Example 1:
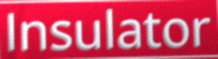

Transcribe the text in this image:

Insulator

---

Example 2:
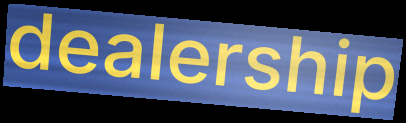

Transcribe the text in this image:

dealership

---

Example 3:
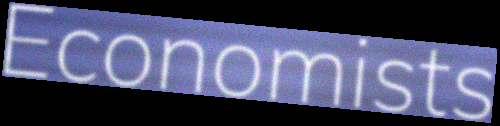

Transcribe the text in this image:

Economists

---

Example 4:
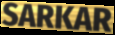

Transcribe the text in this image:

SARKAR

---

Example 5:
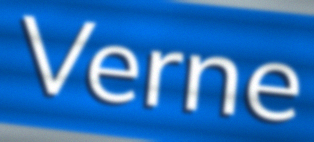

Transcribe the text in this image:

Verne